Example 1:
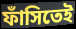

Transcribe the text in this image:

ফাঁসিতেই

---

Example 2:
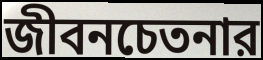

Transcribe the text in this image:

জীবনচেতনার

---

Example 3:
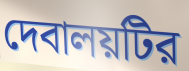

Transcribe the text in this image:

দেবালয়টির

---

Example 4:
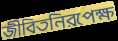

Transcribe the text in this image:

জীবিতনিরপেক্ষ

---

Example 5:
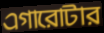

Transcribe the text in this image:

এগারোটার